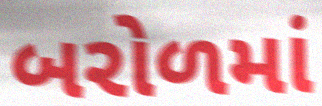
બરોળમાં